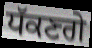
ਧੱਕਣਗੇ